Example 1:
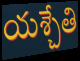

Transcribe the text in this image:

యశ్చేతి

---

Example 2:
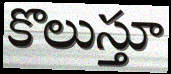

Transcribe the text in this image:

కొలుస్తూ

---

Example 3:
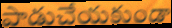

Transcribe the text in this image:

పాడుచేయకుండా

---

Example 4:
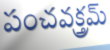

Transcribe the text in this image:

పంచవక్త్రమ్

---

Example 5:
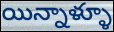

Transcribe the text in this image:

యిన్నాళ్ళూ